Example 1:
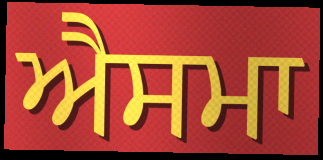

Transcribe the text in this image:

ਐਸਮਾ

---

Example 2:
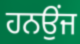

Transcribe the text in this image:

ਹਨਉਂਜ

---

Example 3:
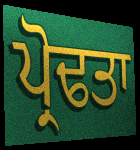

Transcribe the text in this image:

ਪ੍ਰੋਢਤਾ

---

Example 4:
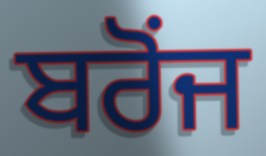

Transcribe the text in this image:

ਬਰੋਂਜ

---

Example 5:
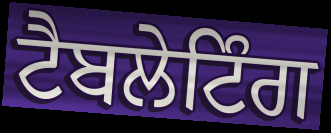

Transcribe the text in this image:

ਟੈਬਲੇਟਿੰਗ